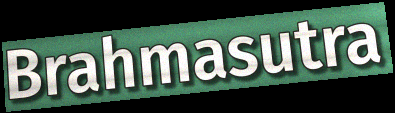
Brahmasutra